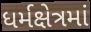
ધર્મક્ષેત્રમાં